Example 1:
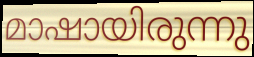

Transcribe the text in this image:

മാഷായിരുന്നു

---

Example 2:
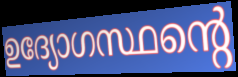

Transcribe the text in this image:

ഉദ്യോഗസ്ഥന്റെ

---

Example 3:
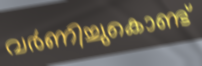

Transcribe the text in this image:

വർണിച്ചുകൊണ്ട്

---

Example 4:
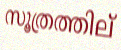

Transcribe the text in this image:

സൂത്രത്തില്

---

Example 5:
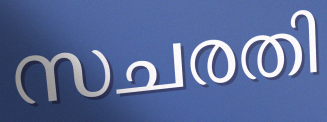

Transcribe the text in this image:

സചരതി